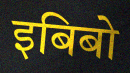
इबिबो